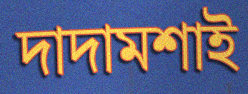
দাদামশাই